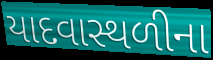
યાદવાસ્થળીના